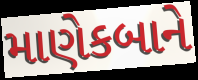
માણેકબાને